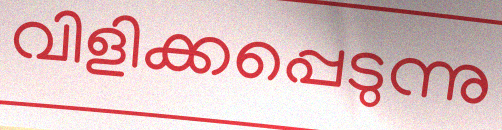
വിളിക്കപ്പെടുന്നു